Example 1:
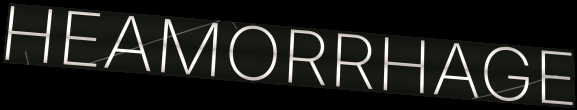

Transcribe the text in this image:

HEAMORRHAGE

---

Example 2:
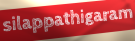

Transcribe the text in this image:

silappathigaram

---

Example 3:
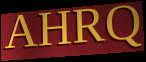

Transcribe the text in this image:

AHRQ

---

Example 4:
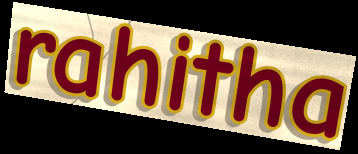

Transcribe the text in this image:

rahitha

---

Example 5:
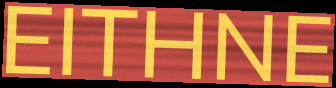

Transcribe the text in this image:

EITHNE